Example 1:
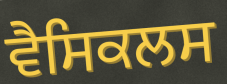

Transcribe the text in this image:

ਵੈਸਿਕਲਸ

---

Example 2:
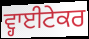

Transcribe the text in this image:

ਵ੍ਹਾਈਟੇਕਰ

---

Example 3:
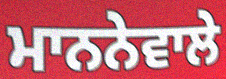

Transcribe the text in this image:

ਮਾਨਨੇਵਾਲੇ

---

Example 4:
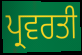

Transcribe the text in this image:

ਪ੍ਰਵਰਤੀ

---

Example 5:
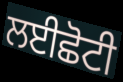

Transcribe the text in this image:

ਲਈਛੋਟੀ